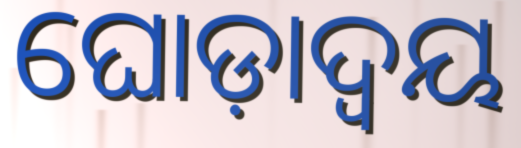
ଘୋଡ଼ାଦ୍ୱୟ